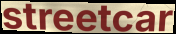
streetcar